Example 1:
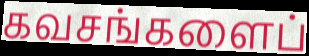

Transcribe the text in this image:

கவசங்களைப்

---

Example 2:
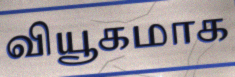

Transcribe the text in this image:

வியூகமாக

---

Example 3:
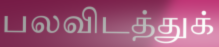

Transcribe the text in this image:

பலவிடத்துக்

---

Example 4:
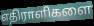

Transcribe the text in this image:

எதிராளிகளை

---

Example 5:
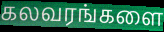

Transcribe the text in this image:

கலவரங்களை